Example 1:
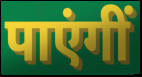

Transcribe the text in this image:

पाएंगीं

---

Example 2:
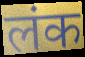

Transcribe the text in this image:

लंक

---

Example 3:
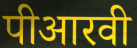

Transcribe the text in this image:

पीआरवी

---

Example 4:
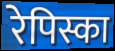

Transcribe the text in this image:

रेपिस्का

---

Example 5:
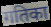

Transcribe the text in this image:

गतिका